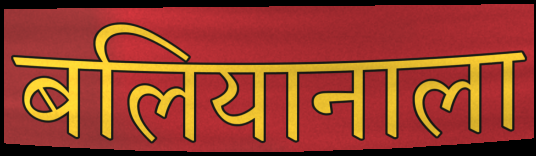
बलियानाला